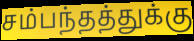
சம்பந்தத்துக்கு